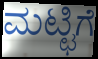
ಮಟ್ಟಿಗೆ